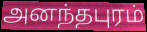
அனந்தபுரம்